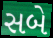
સબે